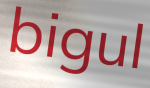
bigul